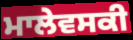
ਮਾਲੇਵਸਕੀ